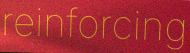
reinforcing